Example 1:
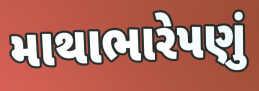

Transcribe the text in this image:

માથાભારેપણું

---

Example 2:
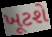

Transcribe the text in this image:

ખૂટશે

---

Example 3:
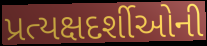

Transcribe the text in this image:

પ્રત્યક્ષદર્શીઓની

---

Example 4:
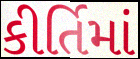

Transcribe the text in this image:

કીર્તિમાં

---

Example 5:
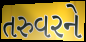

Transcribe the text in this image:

તરુવરને